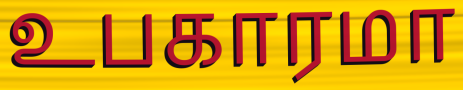
உபகாரமா